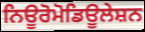
ਨਿਊਰੋਮੋਡਿਊਲੇਸ਼ਨ